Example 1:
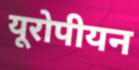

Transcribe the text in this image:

यूरोपीयन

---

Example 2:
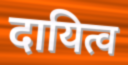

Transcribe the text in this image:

दायित्व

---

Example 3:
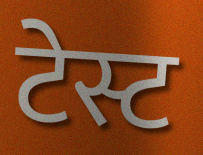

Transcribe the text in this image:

टेस्ट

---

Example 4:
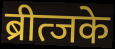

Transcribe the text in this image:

ब्रीत्जके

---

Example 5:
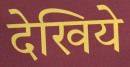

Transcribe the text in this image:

देखिये